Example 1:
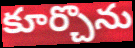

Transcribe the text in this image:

కూర్చొను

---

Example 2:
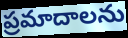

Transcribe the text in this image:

ప్రమాదాలను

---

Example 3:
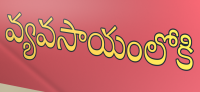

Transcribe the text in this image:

వ్యవసాయంలోకి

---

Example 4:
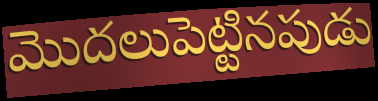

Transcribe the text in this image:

మొదలుపెట్టినపుడు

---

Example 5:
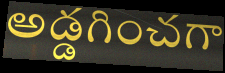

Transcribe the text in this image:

అడ్డగించగా